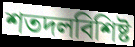
শতদলবিশিষ্ট